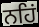
ਨਹਿਂ